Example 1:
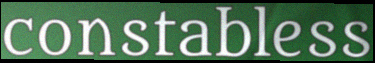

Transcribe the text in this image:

constabless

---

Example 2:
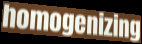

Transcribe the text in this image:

homogenizing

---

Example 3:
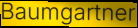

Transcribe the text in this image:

Baumgartner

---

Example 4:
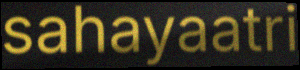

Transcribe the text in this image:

sahayaatri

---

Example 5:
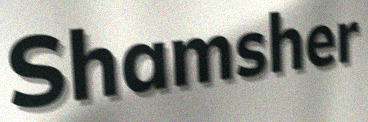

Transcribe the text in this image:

Shamsher